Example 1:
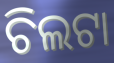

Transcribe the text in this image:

ଚିଲଟା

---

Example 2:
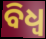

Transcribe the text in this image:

ବିଧ୍ଵ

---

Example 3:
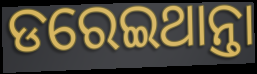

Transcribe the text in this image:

ଡରେଇଥାନ୍ତା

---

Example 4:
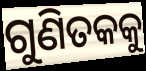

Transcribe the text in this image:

ଗୁଣିତକକୁ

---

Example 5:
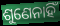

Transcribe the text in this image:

ଶୁଣେନାହିଁ